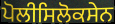
ਪੋਲੀਸਿਲੋਕਸੇਨ